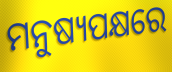
ମନୁଷ୍ୟପକ୍ଷରେ